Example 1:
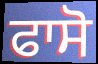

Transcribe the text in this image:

ਫਾਸੋ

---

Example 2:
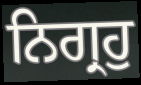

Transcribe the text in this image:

ਨਿਗ੍ਰਹੁ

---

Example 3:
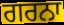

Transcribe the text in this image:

ਗਰਨਾ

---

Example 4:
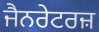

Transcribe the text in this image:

ਜੈਨਰੇਟਰਜ਼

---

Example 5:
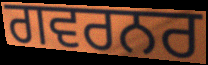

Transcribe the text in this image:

ਗਵਰਨਰ